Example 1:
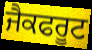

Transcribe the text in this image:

ਜੈਕਫਰੂਟ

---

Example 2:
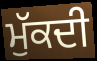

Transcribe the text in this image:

ਮੁੱਕਦੀ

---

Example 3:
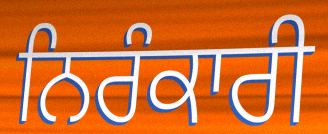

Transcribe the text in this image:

ਨਿਰੰਕਾਰੀ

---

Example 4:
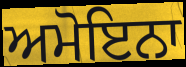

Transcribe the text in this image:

ਅਮੋਇਨਾ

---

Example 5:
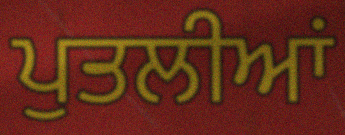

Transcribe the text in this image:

ਪੁਤਲੀਆਂ